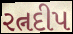
રત્નદીપ